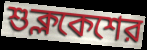
শুক্লকেশের